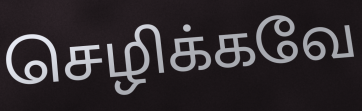
செழிக்கவே